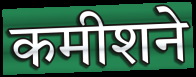
कमीशने